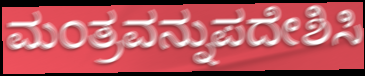
ಮಂತ್ರವನ್ನುಪದೇಶಿಸಿ